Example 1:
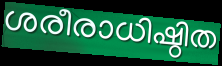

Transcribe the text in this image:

ശരീരാധിഷ്ഠിത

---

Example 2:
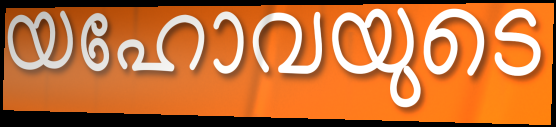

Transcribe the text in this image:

യഹോവയുടെ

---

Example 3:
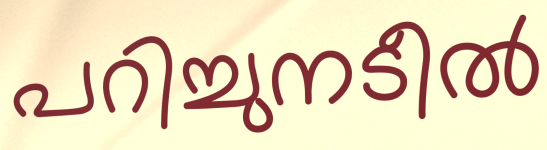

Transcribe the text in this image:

പറിച്ചുനടീൽ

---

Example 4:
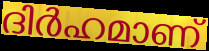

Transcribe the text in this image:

ദിർഹമാണ്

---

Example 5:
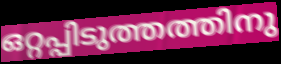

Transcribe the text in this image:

ഒറ്റപ്പിടുത്തത്തിനു